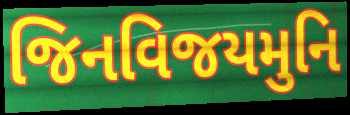
જિનવિજયમુનિ